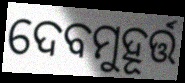
ଦେବମୁହୂର୍ତ୍ତ